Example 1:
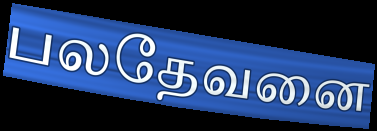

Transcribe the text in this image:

பலதேவனை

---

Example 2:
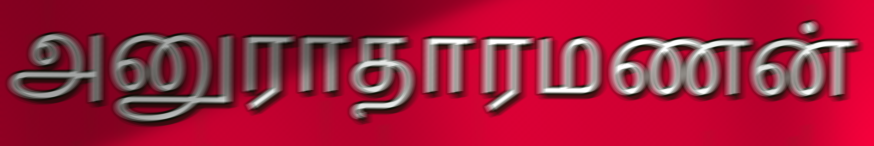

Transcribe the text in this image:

அனுராதாரமணன்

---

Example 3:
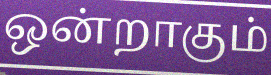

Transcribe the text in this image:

ஒன்றாகும்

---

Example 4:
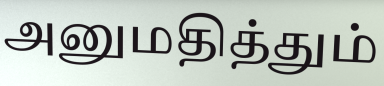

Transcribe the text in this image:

அனுமதித்தும்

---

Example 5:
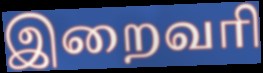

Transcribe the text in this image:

இறைவரி